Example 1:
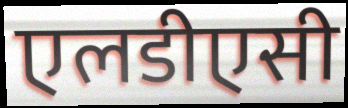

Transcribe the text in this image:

एलडीएसी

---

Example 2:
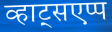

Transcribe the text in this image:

व्हाट्सएप्प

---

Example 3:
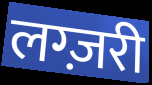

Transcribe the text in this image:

लग्ज़री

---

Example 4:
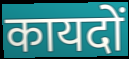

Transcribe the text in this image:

कायदों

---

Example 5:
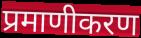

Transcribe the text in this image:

प्रमाणीकरण